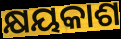
କ୍ଷୟକାଶ